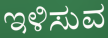
ಇಳಿಸುವ